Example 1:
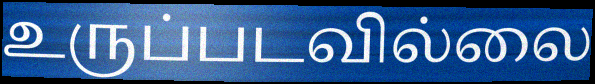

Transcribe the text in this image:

உருப்படவில்லை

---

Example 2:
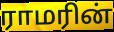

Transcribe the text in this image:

ராமரின்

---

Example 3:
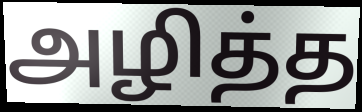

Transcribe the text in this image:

அழித்த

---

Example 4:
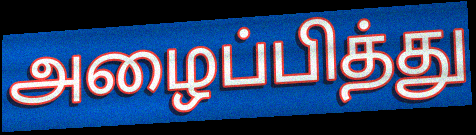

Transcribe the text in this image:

அழைப்பித்து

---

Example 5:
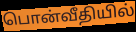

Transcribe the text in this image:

பொன்வீதியில்